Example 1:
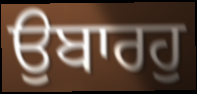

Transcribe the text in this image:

ਉਬਾਰਹੁ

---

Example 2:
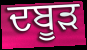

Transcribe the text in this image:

ਦਬੂੜ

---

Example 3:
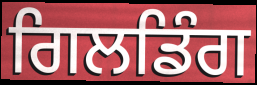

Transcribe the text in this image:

ਗਿਲਡਿੰਗ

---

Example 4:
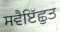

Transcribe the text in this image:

ਸਵੈਇੱਛੁਤ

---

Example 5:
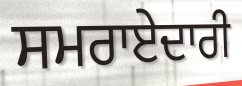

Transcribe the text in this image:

ਸਮਰਾਏਦਾਰੀ